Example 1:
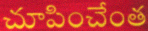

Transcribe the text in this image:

చూపించేంత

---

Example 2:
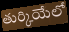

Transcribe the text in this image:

తుర్కియేలో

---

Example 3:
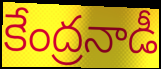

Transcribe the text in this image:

కేంద్రనాడీ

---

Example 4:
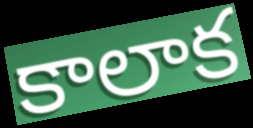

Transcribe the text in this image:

కాలాక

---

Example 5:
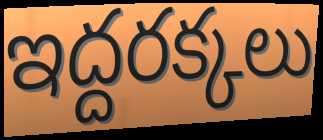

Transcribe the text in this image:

ఇద్దరక్కలు